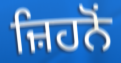
ਜ਼ਿਹਨੋਂ